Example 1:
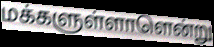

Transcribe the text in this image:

மக்களுள்ளாளென்று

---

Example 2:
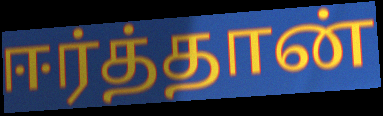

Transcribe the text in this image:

ஈர்த்தான்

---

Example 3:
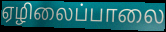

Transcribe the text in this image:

ஏழிலைப்பாலை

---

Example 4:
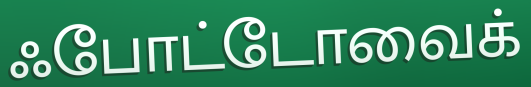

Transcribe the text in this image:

ஃபோட்டோவைக்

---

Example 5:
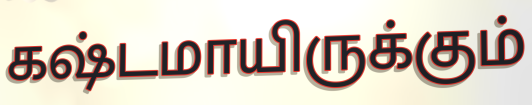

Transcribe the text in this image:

கஷ்டமாயிருக்கும்